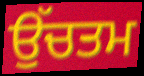
ਉੱਚਤਮ